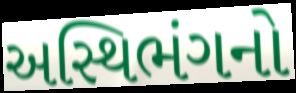
અસ્થિભંગનો